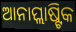
ଆନାପ୍ଲାଷ୍ଟିକ